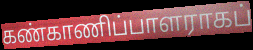
கண்காணிப்பாளராகப்